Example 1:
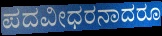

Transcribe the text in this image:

ಪದವೀಧರನಾದರೂ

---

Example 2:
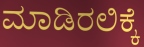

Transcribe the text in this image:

ಮಾಡಿರಲಿಕ್ಕೆ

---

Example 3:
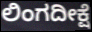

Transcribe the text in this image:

ಲಿಂಗದೀಕ್ಷೆ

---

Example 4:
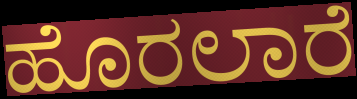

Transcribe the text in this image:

ಹೊರಲಾರೆ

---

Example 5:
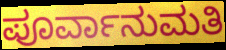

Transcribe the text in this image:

ಪೂರ್ವಾನುಮತಿ